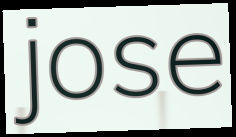
jose